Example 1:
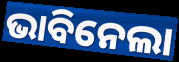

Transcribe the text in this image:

ଭାବିନେଲା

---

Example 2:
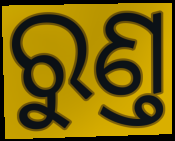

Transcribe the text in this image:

ରୁଣ୍ତ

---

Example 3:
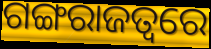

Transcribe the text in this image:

ଗଙ୍ଗରାଜତ୍ୱରେ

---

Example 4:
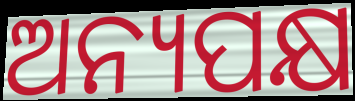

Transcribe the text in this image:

ଅନ୍ୟପକ୍ଷ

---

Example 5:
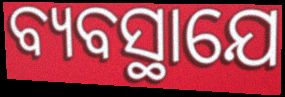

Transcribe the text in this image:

ବ୍ୟବସ୍ଥାଯେ